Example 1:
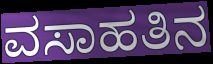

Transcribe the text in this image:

ವಸಾಹತಿನ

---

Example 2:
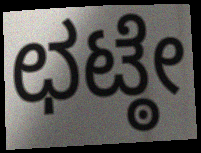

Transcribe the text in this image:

ಛಟ್ಠೇ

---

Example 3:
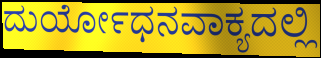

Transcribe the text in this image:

ದುರ್ಯೋಧನವಾಕ್ಯದಲ್ಲಿ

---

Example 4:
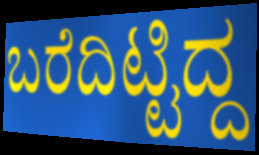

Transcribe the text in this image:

ಬರೆದಿಟ್ಟಿದ್ದ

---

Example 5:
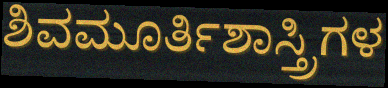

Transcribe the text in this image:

ಶಿವಮೂರ್ತಿಶಾಸ್ತ್ರಿಗಳ